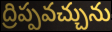
ద్రిప్పవచ్చును